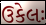
ઉકેલઃ